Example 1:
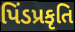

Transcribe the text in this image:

પિંડપ્રકૃતિ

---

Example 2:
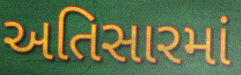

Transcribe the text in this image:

અતિસારમાં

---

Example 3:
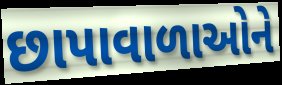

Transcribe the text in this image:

છાપાવાળાઓને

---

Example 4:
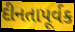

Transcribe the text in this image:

દીનતાપૂર્વક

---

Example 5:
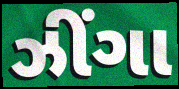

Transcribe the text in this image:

ઝીંગા